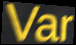
Var